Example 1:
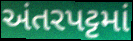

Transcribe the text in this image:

અંતરપટ્ટમાં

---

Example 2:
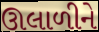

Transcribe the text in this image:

ઊલાળીને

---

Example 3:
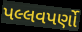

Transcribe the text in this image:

પલ્લવપર્ણો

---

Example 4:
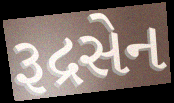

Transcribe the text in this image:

રૂદ્રસેન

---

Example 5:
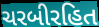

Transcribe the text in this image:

ચરબીરહિત